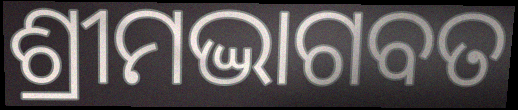
ଶ୍ରୀମଦ୍ଭାଗବତ